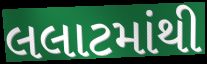
લલાટમાંથી